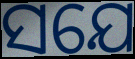
ସଯେ